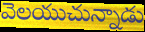
వెలయుచున్నాడు